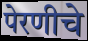
पेरणीचे